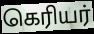
கெரியர்